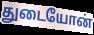
துடையோன்